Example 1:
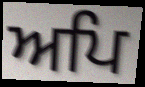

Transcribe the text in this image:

ਅਪਿ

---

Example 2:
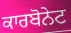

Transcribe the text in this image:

ਕਾਰਬੋਨੇਟ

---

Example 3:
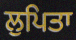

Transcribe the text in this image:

ਲੁਪਿਤਾ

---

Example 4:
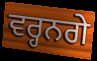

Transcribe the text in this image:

ਵਰ੍ਹਨਗੇ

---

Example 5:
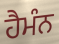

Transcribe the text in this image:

ਹੈਮੰਨ